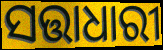
ସତ୍ତାଧାରୀ